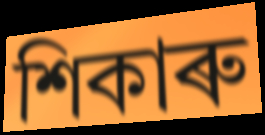
শিকাৰু